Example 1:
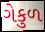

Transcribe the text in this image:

ગેકુળ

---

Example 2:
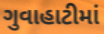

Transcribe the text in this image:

ગુવાહાટીમાં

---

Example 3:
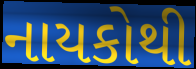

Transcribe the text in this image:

નાયકોથી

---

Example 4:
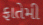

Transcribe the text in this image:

ફાતેમી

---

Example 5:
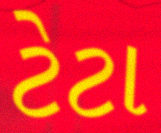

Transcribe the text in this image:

ટેટા